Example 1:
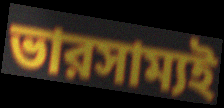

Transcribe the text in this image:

ভারসাম্যই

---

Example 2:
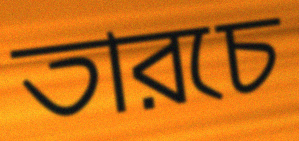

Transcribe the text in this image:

তারচে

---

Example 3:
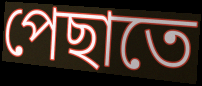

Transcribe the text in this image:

পেছাতে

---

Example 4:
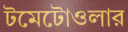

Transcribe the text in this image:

টমেটোওলার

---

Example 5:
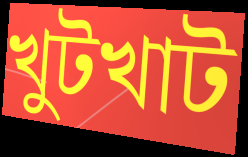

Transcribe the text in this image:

খুটখাট